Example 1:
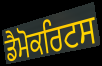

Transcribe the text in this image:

ਡੈਮੋਕਰਿਟਸ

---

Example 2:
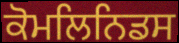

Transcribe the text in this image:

ਕੋਮਲਿਨਿਡਸ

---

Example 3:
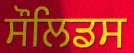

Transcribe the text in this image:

ਸੌਲਿਡਸ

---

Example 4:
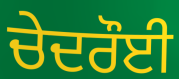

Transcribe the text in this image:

ਚੇਦਰੌਈ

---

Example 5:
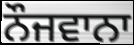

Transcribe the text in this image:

ਨੌਜਵਾਨਾ